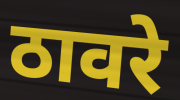
ठावरे